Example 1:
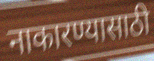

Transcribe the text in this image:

नाकारण्यासाठी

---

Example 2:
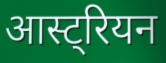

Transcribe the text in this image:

आस्ट्रियन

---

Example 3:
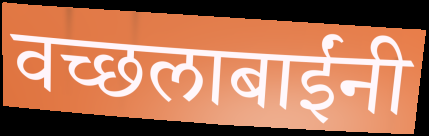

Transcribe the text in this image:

वच्छलाबाईंनी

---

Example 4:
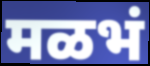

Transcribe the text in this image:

मळभं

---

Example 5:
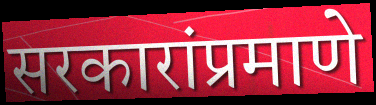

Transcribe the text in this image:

सरकारांप्रमाणे